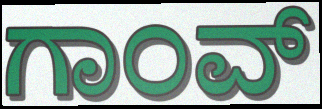
ಗಾಂವ್